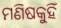
ମଣିଷକୁହିଁ